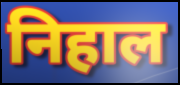
निहाल